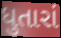
ધુતારાં